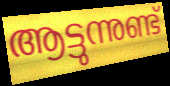
ആട്ടുന്നുണ്ട്